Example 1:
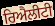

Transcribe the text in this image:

ਰਿਐਲੀਟੀ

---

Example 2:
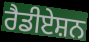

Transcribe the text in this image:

ਰੈਡੀਏਸ਼ਨ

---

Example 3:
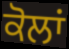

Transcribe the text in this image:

ਕੋਲਾਂ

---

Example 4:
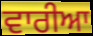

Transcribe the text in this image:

ਵਾਰੀਆ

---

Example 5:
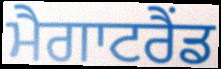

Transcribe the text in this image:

ਮੈਗਾਟਰੈਂਡ